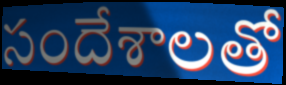
సందేశాలతో